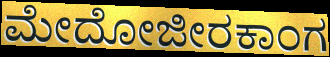
ಮೇದೋಜೀರಕಾಂಗ